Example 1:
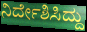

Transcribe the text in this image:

ನಿರ್ದೇಶಿಸಿದ್ದು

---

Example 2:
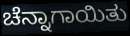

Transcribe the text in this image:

ಚೆನ್ನಾಗಾಯಿತು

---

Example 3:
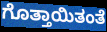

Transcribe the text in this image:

ಗೊತ್ತಾಯಿತಂತೆ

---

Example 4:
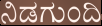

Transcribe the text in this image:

ನಿಡಗುಂದಿ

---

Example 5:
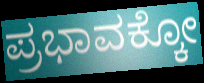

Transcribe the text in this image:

ಪ್ರಭಾವಕ್ಕೋ